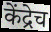
केंद्रेच